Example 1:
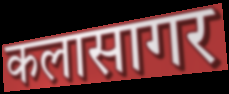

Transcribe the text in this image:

कलासागर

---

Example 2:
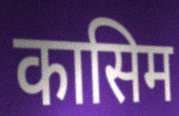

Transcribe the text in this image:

कासिम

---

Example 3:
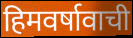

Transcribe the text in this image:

हिमवर्षावाची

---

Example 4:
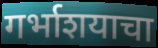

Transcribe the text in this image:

गर्भाशयाचा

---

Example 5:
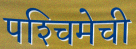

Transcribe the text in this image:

पश्चिमेची